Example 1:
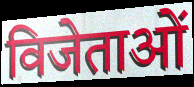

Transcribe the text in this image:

विजेताओं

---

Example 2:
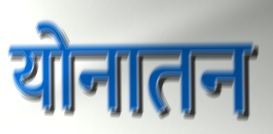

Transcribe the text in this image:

योनातन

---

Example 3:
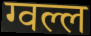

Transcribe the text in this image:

ग्वल्ल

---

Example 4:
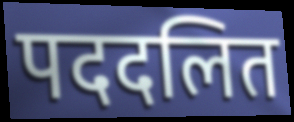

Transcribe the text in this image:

पददलित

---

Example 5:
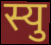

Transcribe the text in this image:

स्यु